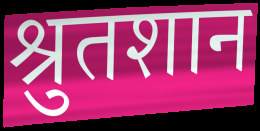
श्रुतशान